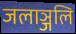
जलाञ्जलि